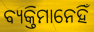
ବ୍ୟକ୍ତିମାନେହିଁ